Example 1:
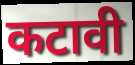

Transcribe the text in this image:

कटावी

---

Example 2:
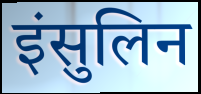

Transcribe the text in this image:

इंसुलिन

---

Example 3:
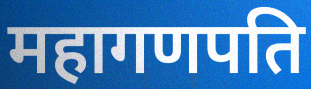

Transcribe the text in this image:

महागणपति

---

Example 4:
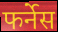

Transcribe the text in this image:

फर्नेस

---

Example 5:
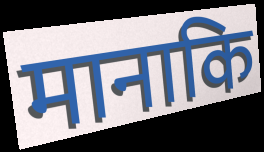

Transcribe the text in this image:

मानाकि